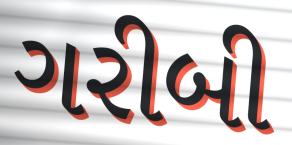
ગરીબી